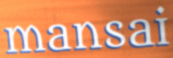
mansai